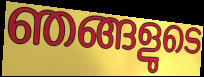
ഞങ്ങളുടെ